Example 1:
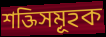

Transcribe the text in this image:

শক্তিসমূহক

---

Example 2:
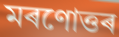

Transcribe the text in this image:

মৰণোত্তৰ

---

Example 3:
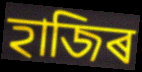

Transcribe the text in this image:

হাজিৰ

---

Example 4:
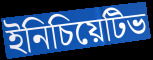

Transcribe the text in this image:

ইনিচিয়েটিভ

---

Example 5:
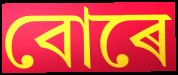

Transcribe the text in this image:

বোৰে